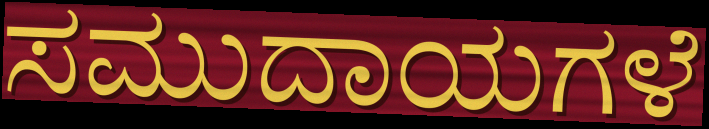
ಸಮುದಾಯಗಳೆ